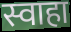
स्‍वाहा